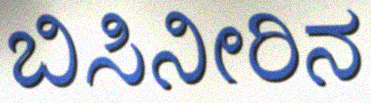
ಬಿಸಿನೀರಿನ